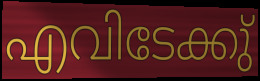
എവിടേക്കു്